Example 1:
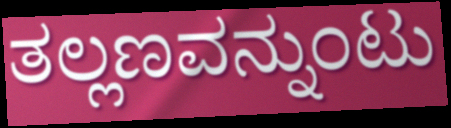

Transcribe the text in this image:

ತಲ್ಲಣವನ್ನುಂಟು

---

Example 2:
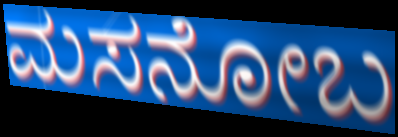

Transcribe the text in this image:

ಮಸನೋಬ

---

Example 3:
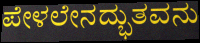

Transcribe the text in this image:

ಪೇಳಲೇನದ್ಭುತವನು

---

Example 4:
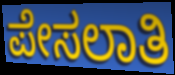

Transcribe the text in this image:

ಪೇಸಲಾತಿ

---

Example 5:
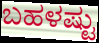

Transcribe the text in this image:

ಬಹಳಷ್ಟು